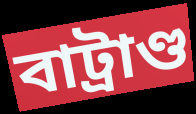
বাট্রাণ্ড